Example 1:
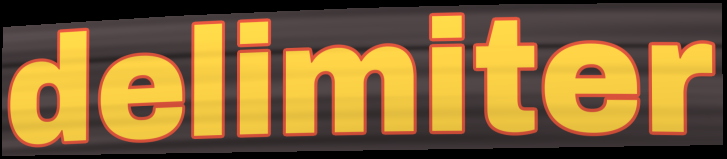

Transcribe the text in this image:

delimiter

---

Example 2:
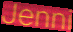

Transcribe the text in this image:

Jenni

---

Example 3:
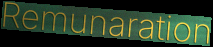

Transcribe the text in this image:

Remunaration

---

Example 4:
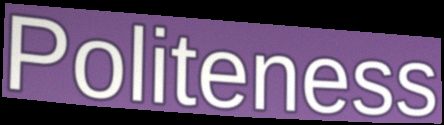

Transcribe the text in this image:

Politeness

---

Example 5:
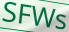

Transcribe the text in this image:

SFWs